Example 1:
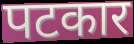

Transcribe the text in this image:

पटकार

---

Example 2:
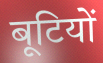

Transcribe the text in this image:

बूटियों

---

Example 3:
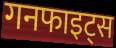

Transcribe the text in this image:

गनफाइट्स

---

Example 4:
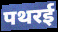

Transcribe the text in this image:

पथरई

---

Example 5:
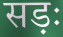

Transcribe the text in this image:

सड़ः